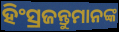
ହିଂସ୍ରଜନ୍ତୁମାନଙ୍କ